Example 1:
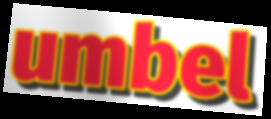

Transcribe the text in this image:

umbel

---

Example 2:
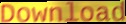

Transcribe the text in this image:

Download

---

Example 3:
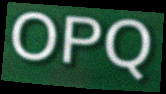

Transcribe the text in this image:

OPQ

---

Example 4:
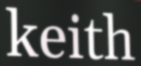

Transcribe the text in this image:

keith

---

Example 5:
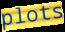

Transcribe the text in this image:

plots